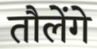
तौलेंगे